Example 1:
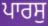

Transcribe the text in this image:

ਪਾਰਸੁ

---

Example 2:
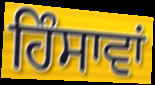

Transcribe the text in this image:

ਹਿੰਸਾਵਾਂ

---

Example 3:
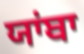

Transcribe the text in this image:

ਯਾਂਬਾ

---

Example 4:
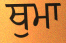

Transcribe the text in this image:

ਥੁਮਾ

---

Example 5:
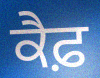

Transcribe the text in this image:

ਕੈਫ਼